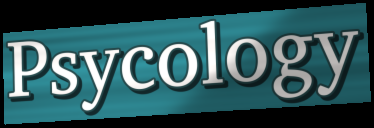
Psycology